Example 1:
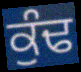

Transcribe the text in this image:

ਕੁੰਢ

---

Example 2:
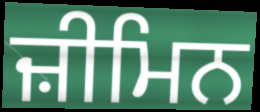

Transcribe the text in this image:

ਜ਼ੀਮਿਨ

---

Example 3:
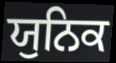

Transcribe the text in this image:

ਯੁਨਿਕ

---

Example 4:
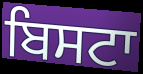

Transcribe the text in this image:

ਬਿਸਟਾ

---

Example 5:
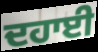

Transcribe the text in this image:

ਦਹਾਈ